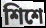
শিশে